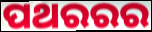
ପଥରରର